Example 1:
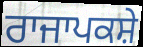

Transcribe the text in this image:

ਰਾਜਾਪਕਸ਼ੇ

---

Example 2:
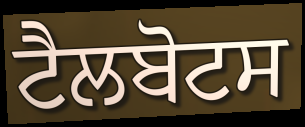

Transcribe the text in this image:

ਟੈਲਬੋਟਸ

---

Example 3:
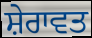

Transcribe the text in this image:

ਸ਼ੇਰਾਵਤ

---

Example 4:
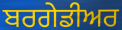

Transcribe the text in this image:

ਬਰਗੇਡੀਅਰ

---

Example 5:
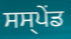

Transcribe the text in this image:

ਸਸ੍ਪੇੰਡ